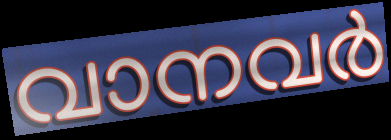
വാനവർ